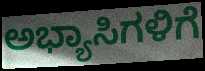
ಅಭ್ಯಾಸಿಗಳಿಗೆ